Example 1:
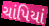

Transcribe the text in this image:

ચાંપિયાં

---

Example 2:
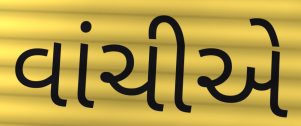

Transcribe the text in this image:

વાંચીએ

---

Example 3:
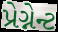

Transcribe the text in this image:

પ્રેગ્નેન્ટ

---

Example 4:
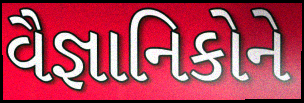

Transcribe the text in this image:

વૈજ્ઞાનિકોને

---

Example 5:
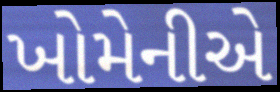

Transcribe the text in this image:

ખોમેનીએ